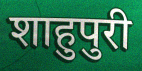
शाहुपुरी